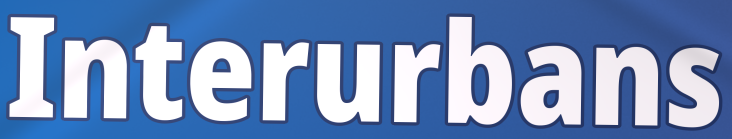
Interurbans